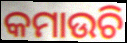
କମାଉଚି